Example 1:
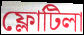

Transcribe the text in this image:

ফ্লোটিলা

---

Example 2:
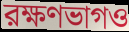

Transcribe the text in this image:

রক্ষণভাগও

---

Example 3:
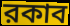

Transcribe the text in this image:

রকাব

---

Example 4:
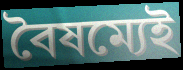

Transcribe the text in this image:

বৈষম্যেই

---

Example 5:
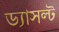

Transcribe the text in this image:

ড্যাসল্ট